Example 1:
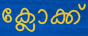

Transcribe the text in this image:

ക്ലോക്ക്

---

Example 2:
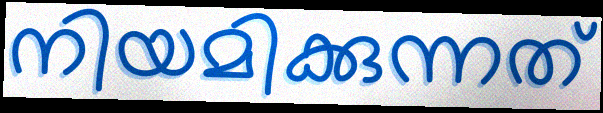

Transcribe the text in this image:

നിയമിക്കുന്നത്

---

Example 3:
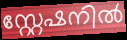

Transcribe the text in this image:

സ്റ്റേഷനിൽ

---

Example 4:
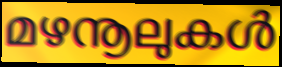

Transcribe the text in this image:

മഴനൂലുകൾ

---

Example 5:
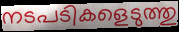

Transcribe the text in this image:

നടപടികളെടുത്തു